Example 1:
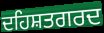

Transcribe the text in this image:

ਦਹਿਸ਼ਤਗਰਦ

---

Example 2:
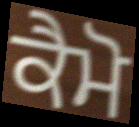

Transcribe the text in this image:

ਕੈਮੋ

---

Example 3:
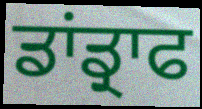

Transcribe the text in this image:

ਡਾਂਡ੍ਰਾਫ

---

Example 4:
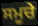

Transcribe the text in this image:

ਸਮੂਚੇ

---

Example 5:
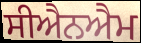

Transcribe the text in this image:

ਸੀਐਨਐਮ